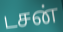
டசன்